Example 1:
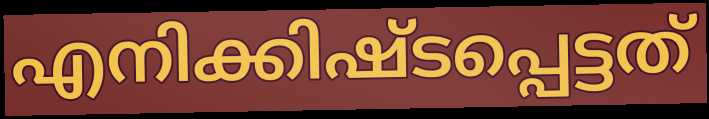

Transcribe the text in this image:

എനിക്കിഷ്ടപ്പെട്ടത്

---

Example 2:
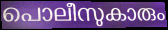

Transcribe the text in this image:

പൊലീസുകാരും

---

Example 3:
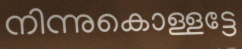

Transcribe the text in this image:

നിന്നുകൊള്ളട്ടേ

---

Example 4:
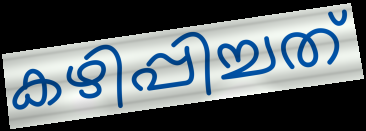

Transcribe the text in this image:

കഴിപ്പിച്ചത്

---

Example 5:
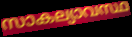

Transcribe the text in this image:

സാകല്യാവസ്ഥ